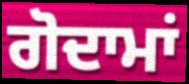
ਗੋਦਾਮਾਂ